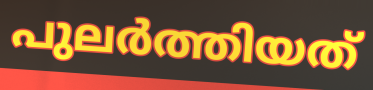
പുലർത്തിയത്